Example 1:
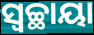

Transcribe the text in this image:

ସ୍ୱଚ୍ଛାୟା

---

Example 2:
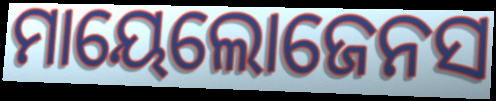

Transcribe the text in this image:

ମାୟେଲୋଜେନସ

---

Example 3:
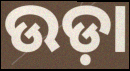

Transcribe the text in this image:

ଉଡ଼ା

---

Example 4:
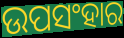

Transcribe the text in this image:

ଉପସଂହାର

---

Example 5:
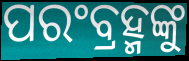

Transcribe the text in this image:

ପରଂବ୍ରହ୍ମଙ୍କୁ